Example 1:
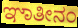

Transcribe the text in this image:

ಞಾತೀನಂ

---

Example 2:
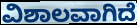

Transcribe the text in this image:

ವಿಶಾಲವಾಗಿದೆ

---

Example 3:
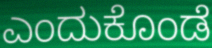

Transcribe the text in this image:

ಎಂದುಕೊಂಡೆ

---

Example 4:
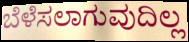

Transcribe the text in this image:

ಬೆಳೆಸಲಾಗುವುದಿಲ್ಲ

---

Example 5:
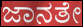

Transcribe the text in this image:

ಜಾನತೇ